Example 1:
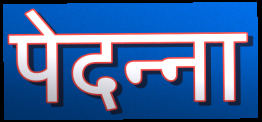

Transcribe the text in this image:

पेदन्ना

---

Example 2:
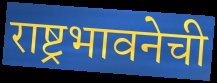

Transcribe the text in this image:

राष्ट्रभावनेची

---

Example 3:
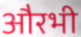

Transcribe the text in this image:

औरभी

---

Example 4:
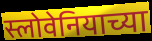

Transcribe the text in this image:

स्लोवेनियाच्या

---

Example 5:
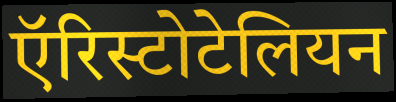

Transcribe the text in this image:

ऍरिस्टोटेलियन